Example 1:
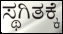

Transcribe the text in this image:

ಸ್ಥಗಿತಕ್ಕೆ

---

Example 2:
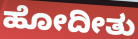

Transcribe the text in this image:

ಹೋದೀತು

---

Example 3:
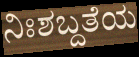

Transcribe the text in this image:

ನಿಃಶಬ್ದತೆಯ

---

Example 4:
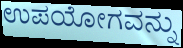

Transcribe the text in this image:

ಉಪಯೋಗವನ್ನು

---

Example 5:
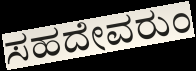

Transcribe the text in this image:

ಸಹದೇವರುಂ